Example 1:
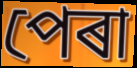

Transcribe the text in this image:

পেৰা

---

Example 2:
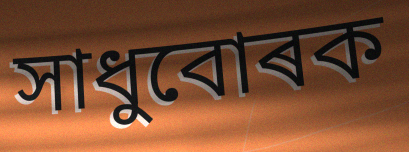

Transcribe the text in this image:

সাধুবোৰক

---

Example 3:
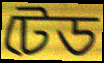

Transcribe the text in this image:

টেড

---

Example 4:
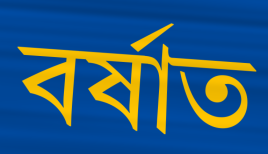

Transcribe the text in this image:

বৰ্ষাত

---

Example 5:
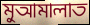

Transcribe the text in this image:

মুআমালাত